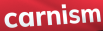
carnism